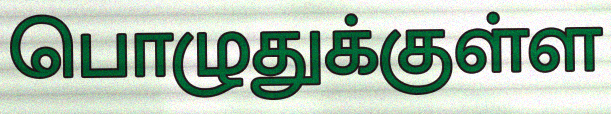
பொழுதுக்குள்ள